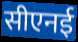
सीएनई